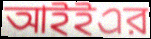
আইইএর